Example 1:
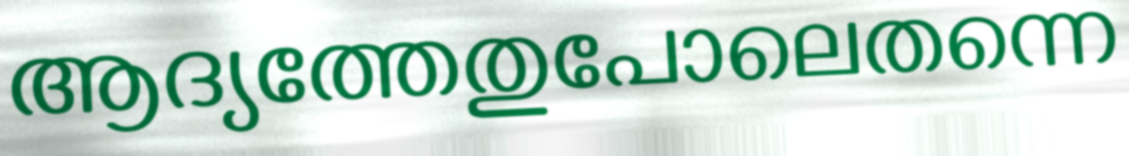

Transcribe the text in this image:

ആദ്യത്തേതുപോലെതന്നെ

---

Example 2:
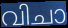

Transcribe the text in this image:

വിചാ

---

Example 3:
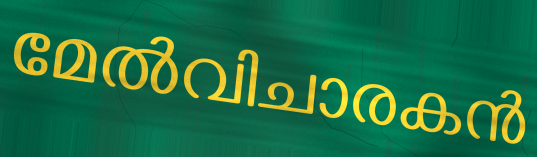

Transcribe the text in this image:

മേൽവിചാരകൻ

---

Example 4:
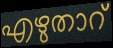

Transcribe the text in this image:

എഴുതാറ്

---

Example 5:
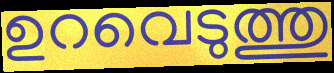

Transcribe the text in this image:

ഉറവെടുത്തു